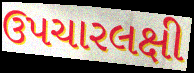
ઉપચારલક્ષી